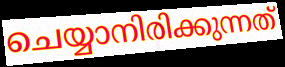
ചെയ്യാനിരിക്കുന്നത്